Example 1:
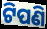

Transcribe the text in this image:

ଟିପଣି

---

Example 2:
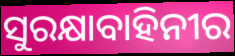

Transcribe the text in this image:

ସୁରକ୍ଷାବାହିନୀର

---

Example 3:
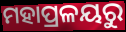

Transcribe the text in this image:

ମହାପ୍ରଳୟରୁ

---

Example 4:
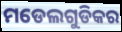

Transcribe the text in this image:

ମଡେଲଗୁଡିକର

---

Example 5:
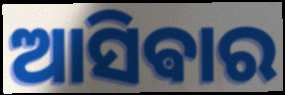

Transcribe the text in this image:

ଆସିଵାର